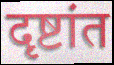
दृष्टांत